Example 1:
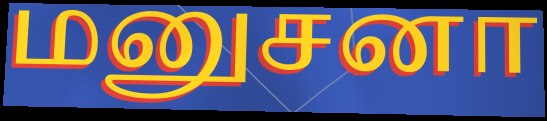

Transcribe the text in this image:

மனுசனா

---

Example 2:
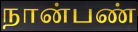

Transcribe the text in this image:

நான்பண்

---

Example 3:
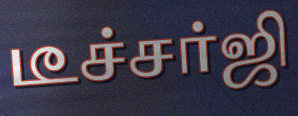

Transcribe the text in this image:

டீச்சர்ஜி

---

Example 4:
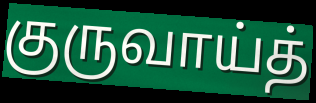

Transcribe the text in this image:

குருவாய்த்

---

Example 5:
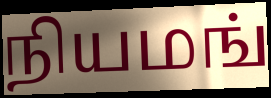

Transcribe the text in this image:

நியமங்